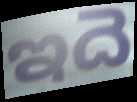
ఇదె